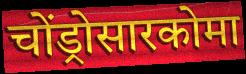
चोंड्रोसारकोमा